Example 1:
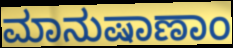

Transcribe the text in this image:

ಮಾನುಷಾಣಾಂ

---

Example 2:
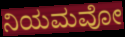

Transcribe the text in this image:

ನಿಯಮವೋ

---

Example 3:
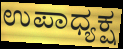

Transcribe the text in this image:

ಉಪಾಧ್ಯಕ್ಷ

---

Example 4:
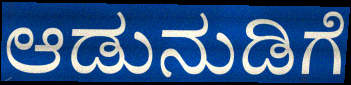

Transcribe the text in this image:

ಆಡುನುಡಿಗೆ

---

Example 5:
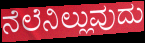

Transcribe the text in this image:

ನೆಲೆನಿಲ್ಲುವುದು